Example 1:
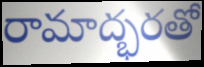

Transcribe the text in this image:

రామాద్భరతో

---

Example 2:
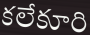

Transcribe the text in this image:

కలేకూరి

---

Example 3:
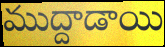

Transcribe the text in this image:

ముద్దాడాయి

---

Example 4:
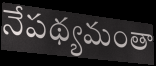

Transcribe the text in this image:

నేపథ్యమంతా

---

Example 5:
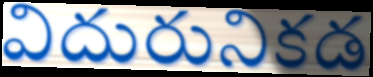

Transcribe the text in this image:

విదురునికడ